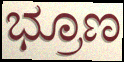
ಭ್ರೂಣ